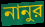
নানুর